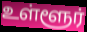
உள்ளூர்